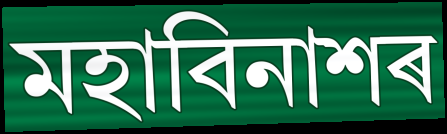
মহাবিনাশৰ